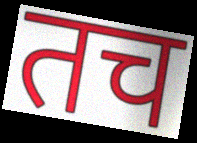
तच